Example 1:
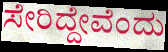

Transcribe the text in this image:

ಸೇರಿದ್ದೇವೆಂದು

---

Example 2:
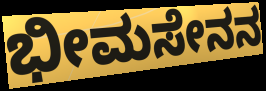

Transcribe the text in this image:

ಭೀಮಸೇನನ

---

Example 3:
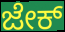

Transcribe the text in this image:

ಜೇಕ್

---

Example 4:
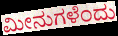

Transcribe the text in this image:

ಮೀನುಗಳೆಂದು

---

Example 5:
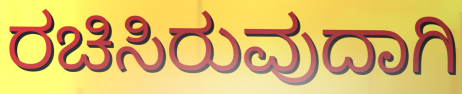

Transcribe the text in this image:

ರಚಿಸಿರುವುದಾಗಿ